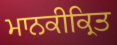
ਮਾਨਕੀਕ੍ਰਿਤ